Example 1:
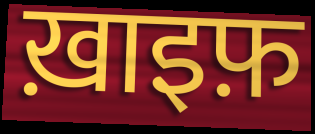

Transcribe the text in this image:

ख़ाइफ़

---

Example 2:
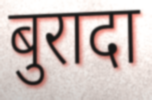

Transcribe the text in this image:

बुरादा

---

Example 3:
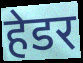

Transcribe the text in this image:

हेडर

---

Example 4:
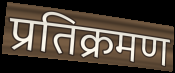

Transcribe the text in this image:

प्रतिक्रमण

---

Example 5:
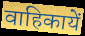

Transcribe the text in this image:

वाहिकायें